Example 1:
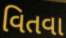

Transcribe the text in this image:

વિતવા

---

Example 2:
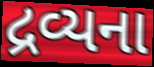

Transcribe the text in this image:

દ્રવ્યના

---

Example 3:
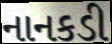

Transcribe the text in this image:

નાનકડી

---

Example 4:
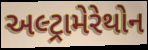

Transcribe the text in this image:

અલ્ટ્રામેરેથોન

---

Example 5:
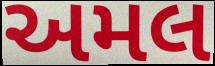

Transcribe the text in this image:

અમલ